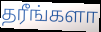
தரீங்களா